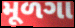
મૂળગા